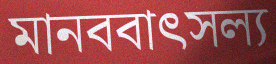
মানববাৎসল্য